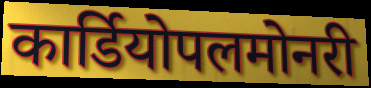
कार्डियोपलमोनरी